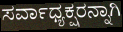
ಸರ್ವಾಧ್ಯಕ್ಷರನ್ನಾಗಿ